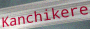
Kanchikere